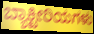
ಬ್ಯಾಕ್ಟೀರಿಯಗಳು